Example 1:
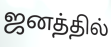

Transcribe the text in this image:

ஜனத்தில்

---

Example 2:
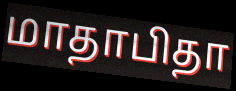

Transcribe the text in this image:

மாதாபிதா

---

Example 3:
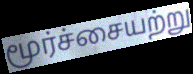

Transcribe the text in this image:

மூர்ச்சையற்று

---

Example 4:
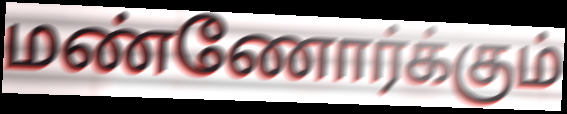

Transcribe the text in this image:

மண்ணோர்க்கும்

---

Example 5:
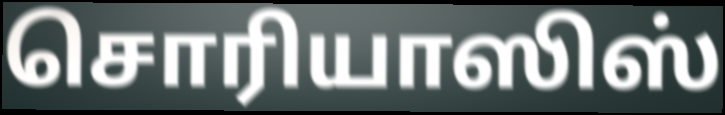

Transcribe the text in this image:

சொரியாஸிஸ்